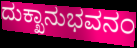
ದುಕ್ಖಾನುಭವನಂ